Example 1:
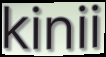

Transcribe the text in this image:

kinii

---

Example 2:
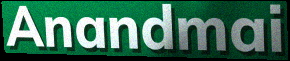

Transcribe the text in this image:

Anandmai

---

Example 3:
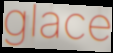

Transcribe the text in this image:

glace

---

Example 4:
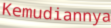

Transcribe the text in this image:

Kemudiannya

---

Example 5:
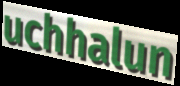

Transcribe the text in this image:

uchhalun